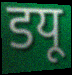
डयू